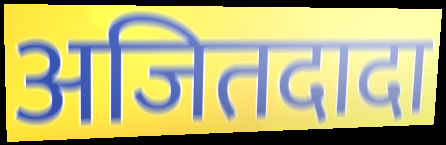
अजितदादा